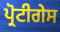
ਪ੍ਰੋਟੀਗੇਸ